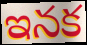
ఇనక